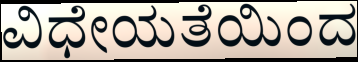
ವಿಧೇಯತೆಯಿಂದ